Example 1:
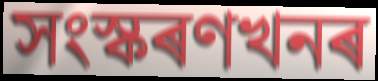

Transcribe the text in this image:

সংস্কৰণখনৰ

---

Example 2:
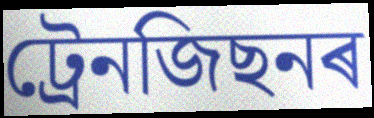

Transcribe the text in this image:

ট্ৰেনজিছনৰ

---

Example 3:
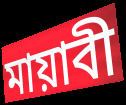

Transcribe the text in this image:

মায়াবী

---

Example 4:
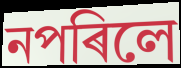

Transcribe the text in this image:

নপৰিলে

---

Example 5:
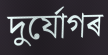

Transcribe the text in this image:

দুৰ্যোগৰ